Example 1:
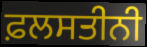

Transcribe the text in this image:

ਫ਼ਲਸਤੀਨੀ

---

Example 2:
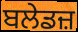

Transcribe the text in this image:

ਬਲੇਡਜ਼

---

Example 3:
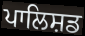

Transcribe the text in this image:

ਪਾਲਿਸ਼ਡ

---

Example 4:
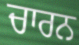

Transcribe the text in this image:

ਚਾਰਨ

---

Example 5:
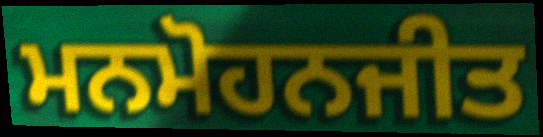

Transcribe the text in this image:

ਮਨਮੋਹਨਜੀਤ